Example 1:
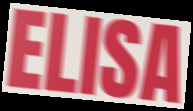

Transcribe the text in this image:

ELISA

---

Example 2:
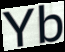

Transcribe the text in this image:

Yb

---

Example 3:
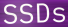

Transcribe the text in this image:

SSDs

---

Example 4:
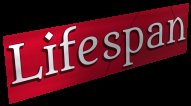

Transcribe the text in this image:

Lifespan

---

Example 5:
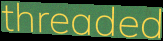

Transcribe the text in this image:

threaded